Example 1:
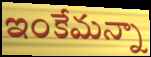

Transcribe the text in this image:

ఇంకేమన్నా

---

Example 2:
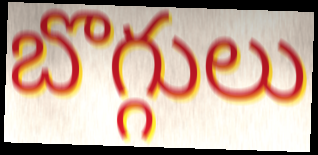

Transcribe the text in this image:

బొగ్గులు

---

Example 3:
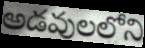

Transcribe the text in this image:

అడవులలోని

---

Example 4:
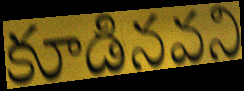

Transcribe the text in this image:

కూడినవని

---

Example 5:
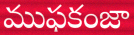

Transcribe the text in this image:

ముఫకంజా